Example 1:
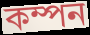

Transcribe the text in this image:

কম্পন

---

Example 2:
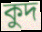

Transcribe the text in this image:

কুদ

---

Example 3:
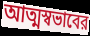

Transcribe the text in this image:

আত্মস্বভাবের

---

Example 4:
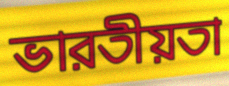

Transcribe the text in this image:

ভারতীয়তা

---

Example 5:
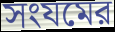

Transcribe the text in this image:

সংযমের